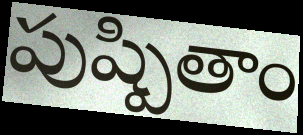
పుష్పితాం